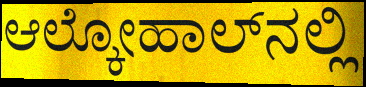
ಆಲ್ಕೋಹಾಲ್‌ನಲ್ಲಿ